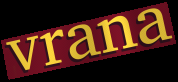
vrana